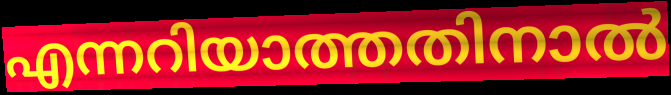
എന്നറിയാത്തതിനാൽ